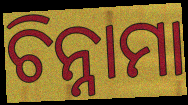
ଚିନ୍ନାମା